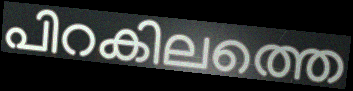
പിറകിലത്തെ